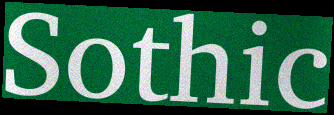
Sothic